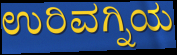
ಉರಿವಗ್ನಿಯ